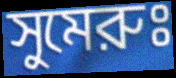
সুমেরুঃ